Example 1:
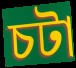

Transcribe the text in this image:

চটা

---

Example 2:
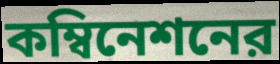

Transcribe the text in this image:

কম্বিনেশনের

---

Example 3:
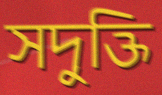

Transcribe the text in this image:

সদুক্তি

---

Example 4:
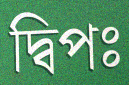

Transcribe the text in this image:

দ্বিপঃ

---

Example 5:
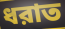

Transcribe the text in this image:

ধরাত